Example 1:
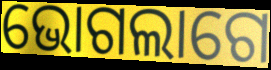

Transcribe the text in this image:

ଭୋଗଲାଗେ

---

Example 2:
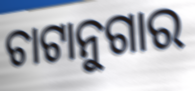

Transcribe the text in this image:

ଚାଟାନୁଗାର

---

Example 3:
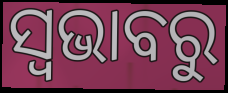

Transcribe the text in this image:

ସ୍ଵଭାବରୁ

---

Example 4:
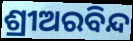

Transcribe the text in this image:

ଶ୍ରୀଅରବିନ୍ଦ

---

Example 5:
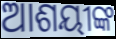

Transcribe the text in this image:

ଆଶୟୀଙ୍କ